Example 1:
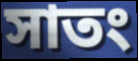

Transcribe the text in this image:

সাতং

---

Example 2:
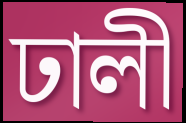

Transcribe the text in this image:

ঢালী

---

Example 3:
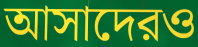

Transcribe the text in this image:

আসাদেরও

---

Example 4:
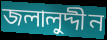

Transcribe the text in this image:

জলালুদ্দীন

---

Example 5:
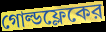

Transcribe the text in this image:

গোল্ডফ্লেকের